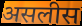
असलीस